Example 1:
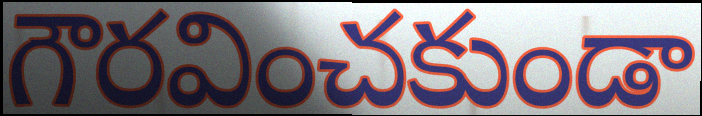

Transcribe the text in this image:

గౌరవించకుండా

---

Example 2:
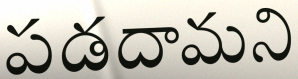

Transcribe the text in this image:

పడదామని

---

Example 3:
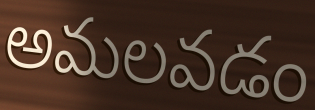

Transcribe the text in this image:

అమలవడం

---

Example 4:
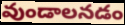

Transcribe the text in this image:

వుండాలనడం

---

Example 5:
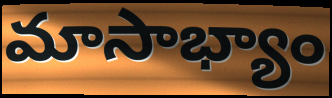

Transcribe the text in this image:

మాసాభ్యాం